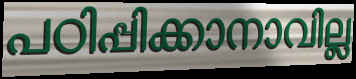
പഠിപ്പിക്കാനാവില്ല